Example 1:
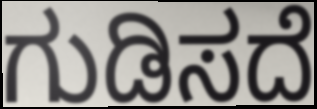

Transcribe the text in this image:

ಗುಡಿಸದೆ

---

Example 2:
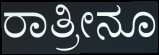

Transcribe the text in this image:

ರಾತ್ರೀನೂ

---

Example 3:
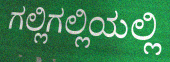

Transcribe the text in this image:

ಗಲ್ಲಿಗಲ್ಲಿಯಲ್ಲಿ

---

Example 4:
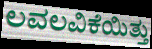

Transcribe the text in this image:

ಲವಲವಿಕೆಯಿತ್ತು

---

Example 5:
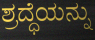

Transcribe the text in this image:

ಶ್ರದ್ಧೆಯನ್ನು